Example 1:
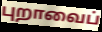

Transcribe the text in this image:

புறாவைப்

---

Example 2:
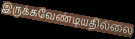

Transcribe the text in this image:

இருக்கவேண்டியதில்லை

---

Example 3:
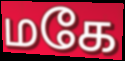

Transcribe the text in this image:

மகே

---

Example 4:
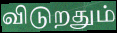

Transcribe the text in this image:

விடுறதும்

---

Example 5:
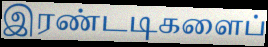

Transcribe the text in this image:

இரண்டடிகளைப்